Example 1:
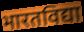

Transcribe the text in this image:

भारतविद्या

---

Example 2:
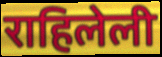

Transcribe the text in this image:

राहिलेली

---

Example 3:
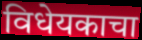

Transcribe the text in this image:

विधेयकाचा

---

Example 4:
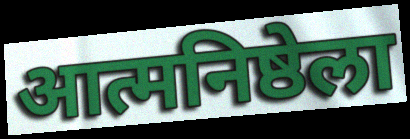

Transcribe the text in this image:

आत्मनिष्ठेला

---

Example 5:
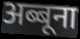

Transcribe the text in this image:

अब्बूना